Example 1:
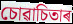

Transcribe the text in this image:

চোৱাচিতাৰ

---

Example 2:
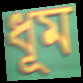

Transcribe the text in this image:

ধূম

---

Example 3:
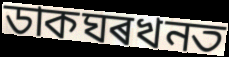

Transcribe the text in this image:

ডাকঘৰখনত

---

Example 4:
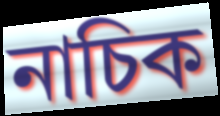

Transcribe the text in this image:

নাচিক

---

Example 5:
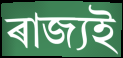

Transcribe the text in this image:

ৰাজ্যই